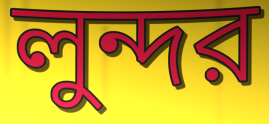
লুন্দর